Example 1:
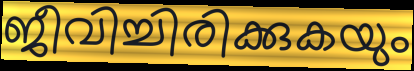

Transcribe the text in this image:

ജീവിച്ചിരിക്കുകയും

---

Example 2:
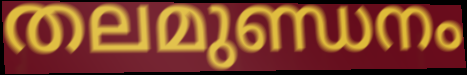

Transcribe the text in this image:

തലമുണ്ഡനം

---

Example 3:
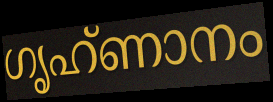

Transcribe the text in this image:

ഗൃഹ്ണാനം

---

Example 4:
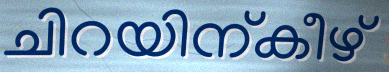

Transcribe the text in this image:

ചിറയിന്കീഴ്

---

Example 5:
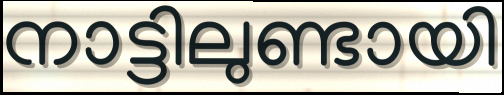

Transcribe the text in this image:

നാട്ടിലുണ്ടായി